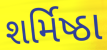
શર્મિષ્ઠા